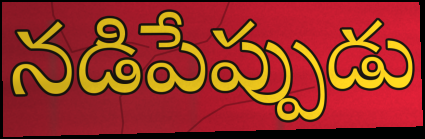
నడిపేప్పుడు